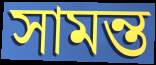
সামন্ত